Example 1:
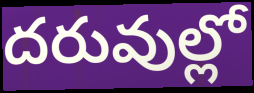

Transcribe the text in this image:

దరువుల్లో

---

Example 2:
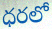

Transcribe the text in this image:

ధరలో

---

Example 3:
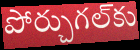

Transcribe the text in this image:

పోర్చుగల్‌కు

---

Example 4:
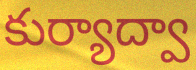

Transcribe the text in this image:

కుర్యాద్వా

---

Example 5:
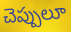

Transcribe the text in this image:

చెప్పులూ